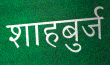
शाहबुर्ज